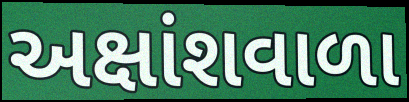
અક્ષાંશવાળા